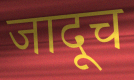
जादूच